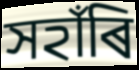
সহাঁৰি